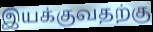
இயக்குவதற்கு